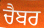
ਚੈਬਰ